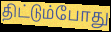
திட்டும்போது